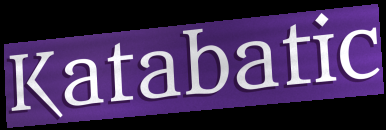
Katabatic